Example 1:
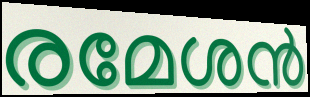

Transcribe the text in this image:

രമേശൻ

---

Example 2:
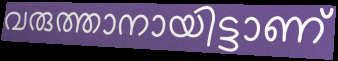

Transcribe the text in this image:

വരുത്താനായിട്ടാണ്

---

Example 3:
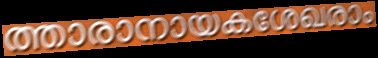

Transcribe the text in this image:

ത്താരാനായകശേഖരാം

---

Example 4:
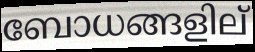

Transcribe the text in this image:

ബോധങ്ങളില്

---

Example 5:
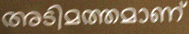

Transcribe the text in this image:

അടിമത്തമാണ്